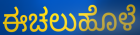
ಈಚಲುಹೊಳೆ